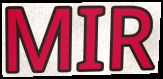
MIR